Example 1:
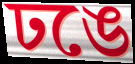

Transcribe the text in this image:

ঢঙে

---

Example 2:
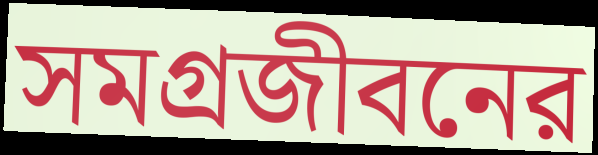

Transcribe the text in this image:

সমগ্রজীবনের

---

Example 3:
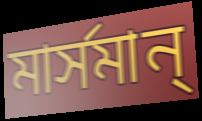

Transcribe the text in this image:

মার্সমান্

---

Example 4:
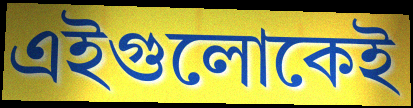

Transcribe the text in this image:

এইগুলোকেই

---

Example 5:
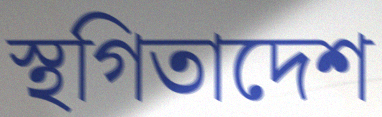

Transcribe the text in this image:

স্থগিতাদেশ